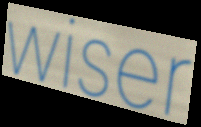
wiser